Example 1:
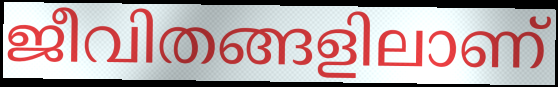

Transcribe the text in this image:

ജീവിതങ്ങളിലാണ്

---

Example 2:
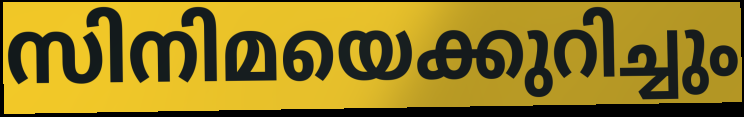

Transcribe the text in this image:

സിനിമയെക്കുറിച്ചും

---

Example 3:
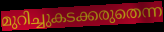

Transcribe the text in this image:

മുറിച്ചുകടക്കരുതെന്ന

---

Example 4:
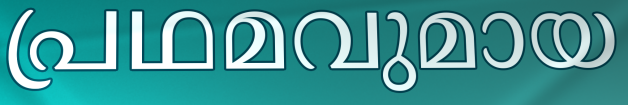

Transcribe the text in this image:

പ്രഥമവുമായ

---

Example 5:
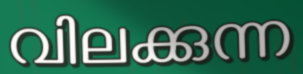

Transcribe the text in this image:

വിലക്കുന്ന